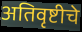
अतिवृष्टीचे